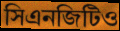
সিএনজিটিও